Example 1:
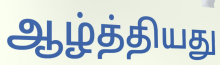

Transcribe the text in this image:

ஆழ்த்தியது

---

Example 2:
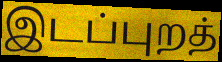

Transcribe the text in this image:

இடப்புறத்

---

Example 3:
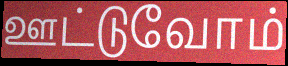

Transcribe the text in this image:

ஊட்டுவோம்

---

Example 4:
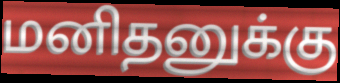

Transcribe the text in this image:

மனிதனுக்கு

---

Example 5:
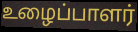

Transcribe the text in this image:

உழைப்பாளர்